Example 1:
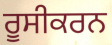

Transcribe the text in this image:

ਰੂਸੀਕਰਨ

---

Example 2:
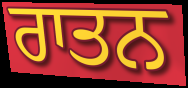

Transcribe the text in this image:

ਰਾਤਨ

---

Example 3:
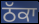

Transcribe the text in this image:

ਠੱਕਾ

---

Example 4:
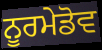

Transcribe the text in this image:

ਨੂਰਮੇਡੋਵ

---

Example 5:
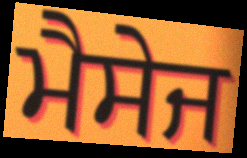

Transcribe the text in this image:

ਮੈਸੇਜ